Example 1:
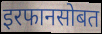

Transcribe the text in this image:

इरफानसोबत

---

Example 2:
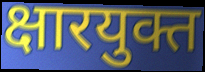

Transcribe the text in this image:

क्षारयुक्त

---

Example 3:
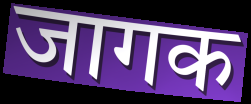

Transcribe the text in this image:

जागक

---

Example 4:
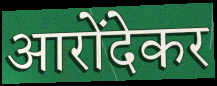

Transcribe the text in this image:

आरोंदेकर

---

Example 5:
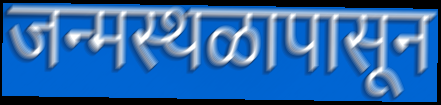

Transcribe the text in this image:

जन्मस्थळापासून